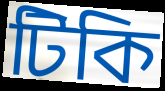
টিকি